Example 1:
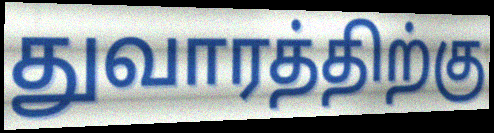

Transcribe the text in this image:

துவாரத்திற்கு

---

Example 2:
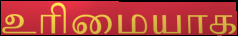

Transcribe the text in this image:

உரிமையாக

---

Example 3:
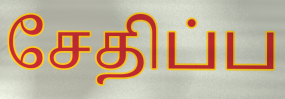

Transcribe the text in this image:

சேதிப்ப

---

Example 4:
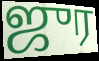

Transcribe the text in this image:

ஜுர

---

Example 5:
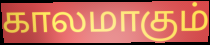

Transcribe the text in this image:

காலமாகும்